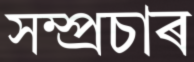
সম্প্ৰচাৰ